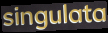
singulata